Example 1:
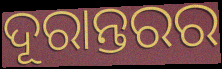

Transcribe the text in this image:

ଦୂରାନ୍ତରର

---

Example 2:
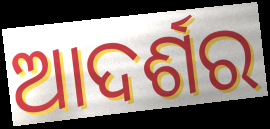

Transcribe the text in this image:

ଆଦର୍ଶର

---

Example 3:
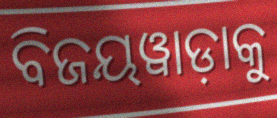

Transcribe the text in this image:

ବିଜୟୱାଡ଼ାକୁ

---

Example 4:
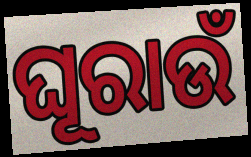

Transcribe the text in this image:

ଘୂରାଉଁ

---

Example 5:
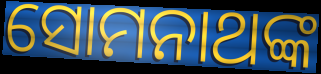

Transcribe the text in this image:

ସୋମନାଥଙ୍କ